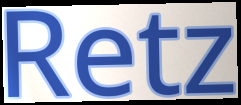
Retz